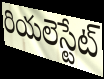
రియలెస్టేట్